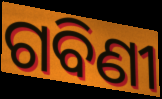
ଗବିଣୀ